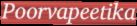
Poorvapeetika